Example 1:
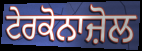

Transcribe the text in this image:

ਟੇਰਕੋਨਾਜ਼ੋਲ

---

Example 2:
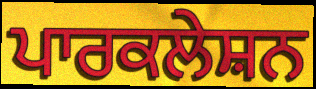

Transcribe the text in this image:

ਪਾਰਕਲੇਸ਼ਨ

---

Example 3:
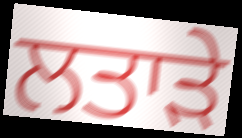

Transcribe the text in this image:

ਲਤਾਡ਼ੇ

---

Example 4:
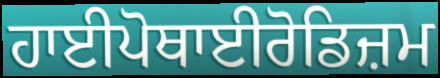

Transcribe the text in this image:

ਹਾਈਪੋਥਾਈਰੋਡਿਜ਼ਮ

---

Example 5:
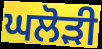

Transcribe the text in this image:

ਘਲੋਡ਼ੀ